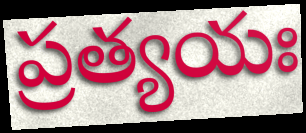
ప్రత్యయః